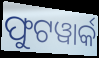
ଫୁଟୱାର୍କ